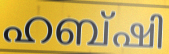
ഹബ്ഷി